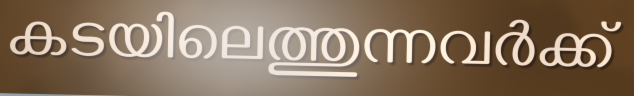
കടയിലെത്തുന്നവർക്ക്